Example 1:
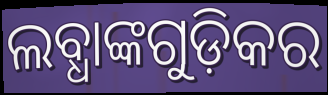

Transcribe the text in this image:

ଲବ୍ଧାଙ୍କଗୁଡ଼ିକର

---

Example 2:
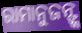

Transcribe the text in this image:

ରାମାନୁଜନ୍ଙ୍କ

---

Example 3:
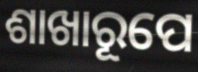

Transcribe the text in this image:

ଶାଖାରୂପେ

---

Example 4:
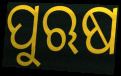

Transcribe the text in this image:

ପୁଋଷ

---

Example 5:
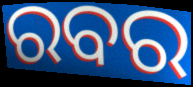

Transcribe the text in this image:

ରବର